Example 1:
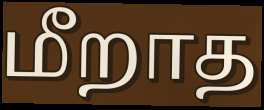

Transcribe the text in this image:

மீறாத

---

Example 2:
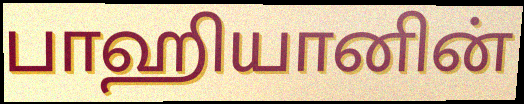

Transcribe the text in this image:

பாஹியானின்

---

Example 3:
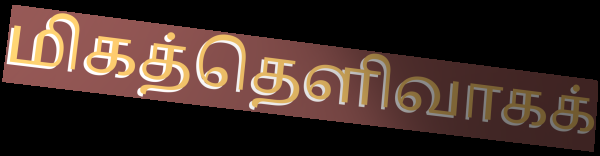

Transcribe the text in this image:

மிகத்தெளிவாகக்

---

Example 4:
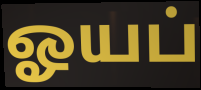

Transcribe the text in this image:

ஓயப்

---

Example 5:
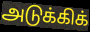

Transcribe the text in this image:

அடுக்கிக்